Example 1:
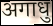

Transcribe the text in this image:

अगाधु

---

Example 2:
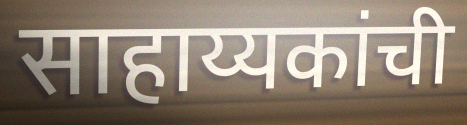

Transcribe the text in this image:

साहाय्यकांची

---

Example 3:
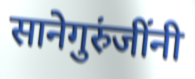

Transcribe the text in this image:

सानेगुरुंजींनी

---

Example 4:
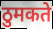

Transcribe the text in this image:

ठुमकते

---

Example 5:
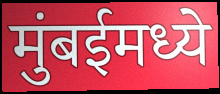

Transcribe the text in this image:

मुंबईमध्ये